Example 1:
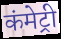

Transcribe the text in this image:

कंमेट्री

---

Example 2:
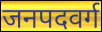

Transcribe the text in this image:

जनपदवर्ग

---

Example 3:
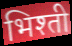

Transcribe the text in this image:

भिश्ती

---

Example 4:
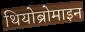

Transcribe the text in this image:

थियोब्रोमाइन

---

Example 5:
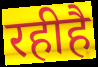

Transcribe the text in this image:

रहीहै